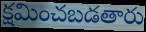
క్షమించబడతారు